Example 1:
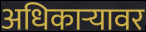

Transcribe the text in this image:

अधिकाऱ्यावर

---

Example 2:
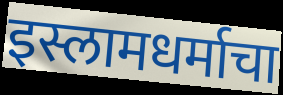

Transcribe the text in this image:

इस्लामधर्माचा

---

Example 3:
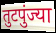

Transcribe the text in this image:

तुटपुंज्या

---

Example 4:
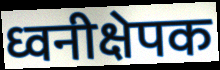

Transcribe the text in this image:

ध्वनीक्षेपक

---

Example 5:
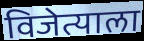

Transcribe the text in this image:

विजेत्याला